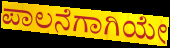
ಪಾಲನೆಗಾಗಿಯೇ